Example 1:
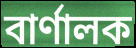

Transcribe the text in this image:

বাৰ্ণালক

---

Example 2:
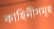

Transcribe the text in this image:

কাহিনীসমূহ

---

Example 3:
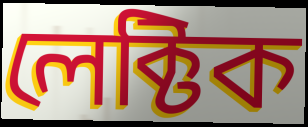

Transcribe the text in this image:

লেক্টিক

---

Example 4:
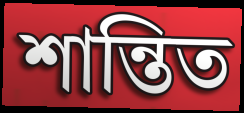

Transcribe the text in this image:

শান্তিত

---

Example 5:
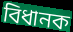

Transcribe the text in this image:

বিধানক